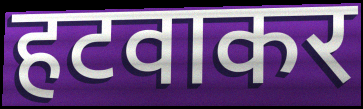
हटवाकर